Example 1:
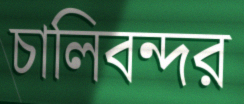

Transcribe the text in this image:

চালিবন্দর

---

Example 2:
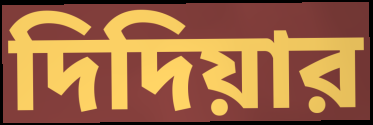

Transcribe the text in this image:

দিদিয়ার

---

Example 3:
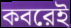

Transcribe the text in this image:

কবরেই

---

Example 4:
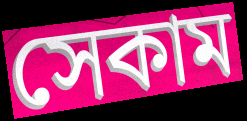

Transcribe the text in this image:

সেকাম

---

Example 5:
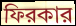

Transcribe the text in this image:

ফিরকার